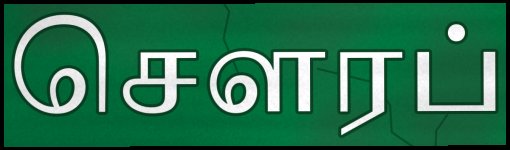
செளரப்